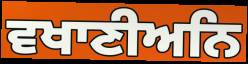
ਵਖਾਣੀਅਨਿ